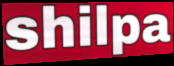
shilpa